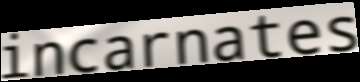
incarnates